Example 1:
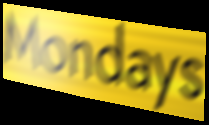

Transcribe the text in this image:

Mondays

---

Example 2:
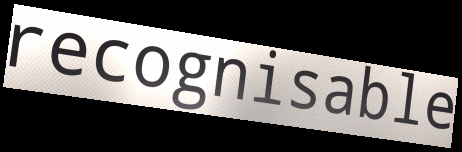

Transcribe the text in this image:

recognisable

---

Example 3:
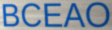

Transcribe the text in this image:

BCEAO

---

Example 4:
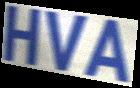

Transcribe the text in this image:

HVA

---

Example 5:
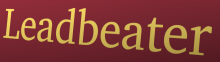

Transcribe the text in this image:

Leadbeater